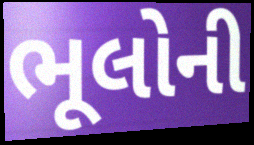
ભૂલોની